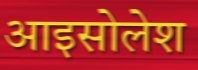
आइसोलेश